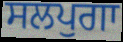
ਸਲਪੁਗਾ